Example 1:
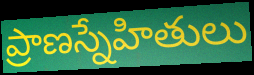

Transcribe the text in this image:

ప్రాణస్నేహితులు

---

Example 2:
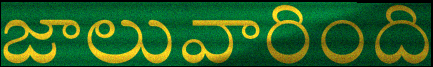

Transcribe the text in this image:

జాలువారింది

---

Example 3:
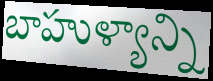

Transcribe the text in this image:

బాహుళ్యాన్ని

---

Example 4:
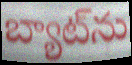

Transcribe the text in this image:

బ్యాట్‌ను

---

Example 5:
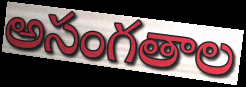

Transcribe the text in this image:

అసంగతాల